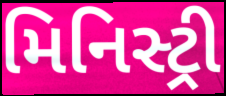
મિનિસ્ટ્રી